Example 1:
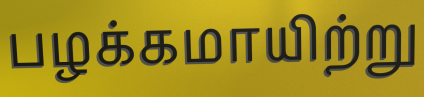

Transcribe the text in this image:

பழக்கமாயிற்று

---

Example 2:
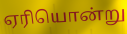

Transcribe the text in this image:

ஏரியொன்று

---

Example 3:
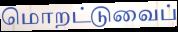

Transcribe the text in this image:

மொறட்டுவைப்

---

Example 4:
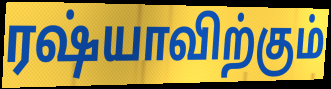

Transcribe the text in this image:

ரஷ்யாவிற்கும்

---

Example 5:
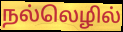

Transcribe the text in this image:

நல்லெழில்